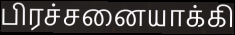
பிரச்சனையாக்கி